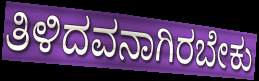
ತಿಳಿದವನಾಗಿರಬೇಕು